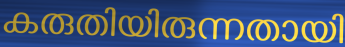
കരുതിയിരുന്നതായി